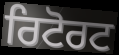
ਰਿਟੋਰਟ